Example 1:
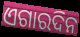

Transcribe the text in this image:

ଏଗାରଦିନ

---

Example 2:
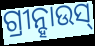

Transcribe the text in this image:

ଗ୍ରୀନ୍ହାଉସ୍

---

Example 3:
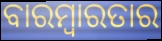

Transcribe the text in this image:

ବାରମ୍ବାରତାର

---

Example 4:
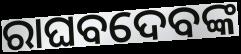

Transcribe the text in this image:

ରାଘବଦେବଙ୍କ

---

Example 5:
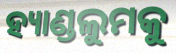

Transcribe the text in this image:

ହ୍ୟାଣ୍ଡଲୁମକୁ